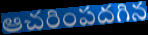
ఆచరింపదగిన